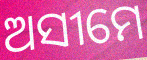
ଅସୀମେ